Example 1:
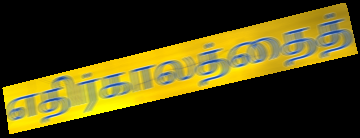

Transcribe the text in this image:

எதிர்காலத்தைத்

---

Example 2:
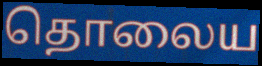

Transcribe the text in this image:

தொலைய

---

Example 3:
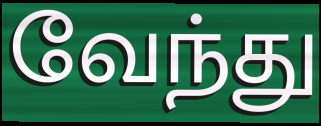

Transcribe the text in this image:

வேந்து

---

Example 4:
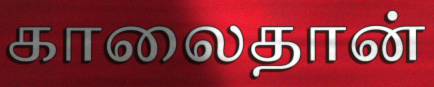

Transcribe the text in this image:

காலைதான்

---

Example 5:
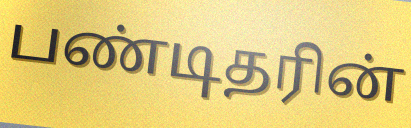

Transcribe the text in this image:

பண்டிதரின்